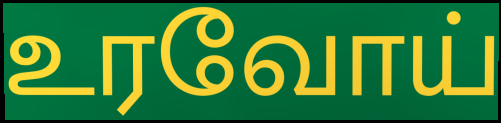
உரவோய்